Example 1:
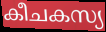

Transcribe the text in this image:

കീചകസ്യ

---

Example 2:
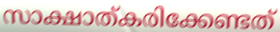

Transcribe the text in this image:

സാക്ഷാത്കരിക്കേണ്ടത്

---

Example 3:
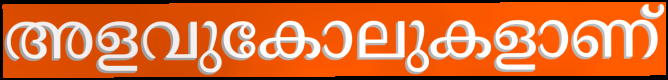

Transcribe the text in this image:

അളവുകോലുകളാണ്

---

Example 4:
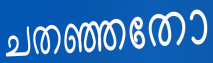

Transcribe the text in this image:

ചതഞ്ഞതോ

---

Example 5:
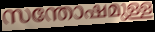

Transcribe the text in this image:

സന്തോഷമുള്ള